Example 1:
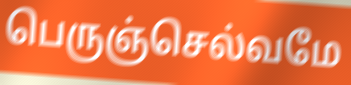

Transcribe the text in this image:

பெருஞ்செல்வமே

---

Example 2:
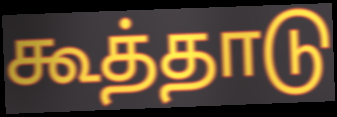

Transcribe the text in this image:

கூத்தாடு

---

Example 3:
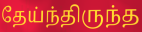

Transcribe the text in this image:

தேய்ந்திருந்த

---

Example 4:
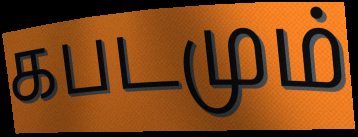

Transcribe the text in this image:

கபடமும்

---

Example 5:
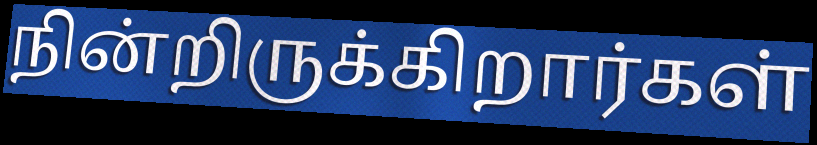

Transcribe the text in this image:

நின்றிருக்கிறார்கள்